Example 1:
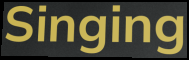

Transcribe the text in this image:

Singing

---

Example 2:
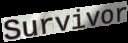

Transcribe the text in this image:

Survivor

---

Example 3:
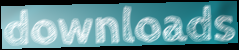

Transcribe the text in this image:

downloads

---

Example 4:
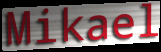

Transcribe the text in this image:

Mikael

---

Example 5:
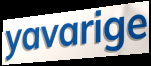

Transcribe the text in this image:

yavarige